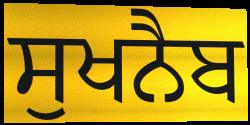
ਸੁਖਨੈਬ